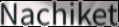
Nachiket